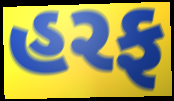
હરફ